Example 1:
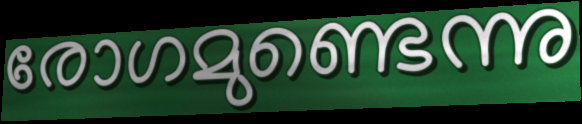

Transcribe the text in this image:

രോഗമുണ്ടെന്നു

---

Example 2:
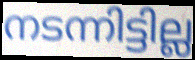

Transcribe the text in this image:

നടന്നിട്ടില്ല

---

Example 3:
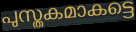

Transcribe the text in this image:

പുസ്തകമാകട്ടെ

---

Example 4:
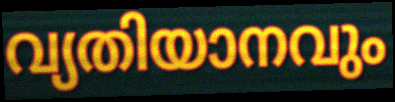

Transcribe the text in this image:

വ്യതിയാനവും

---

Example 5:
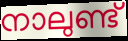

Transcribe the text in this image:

നാലുണ്ട്